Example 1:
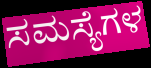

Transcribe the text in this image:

ಸಮಸ್ಯೆಗಳ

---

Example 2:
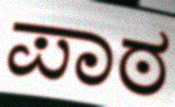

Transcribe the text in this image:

ಪಾಠ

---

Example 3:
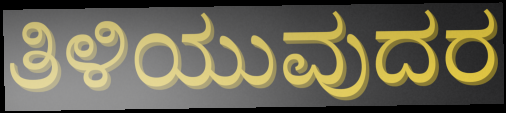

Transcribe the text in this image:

ತಿಳಿಯುವುದರ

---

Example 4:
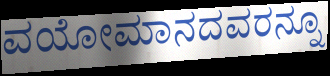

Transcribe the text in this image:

ವಯೋಮಾನದವರನ್ನೂ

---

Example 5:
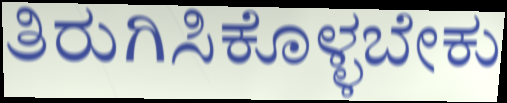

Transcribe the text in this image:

ತಿರುಗಿಸಿಕೊಳ್ಳಬೇಕು